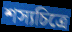
শস্যচিত্রে